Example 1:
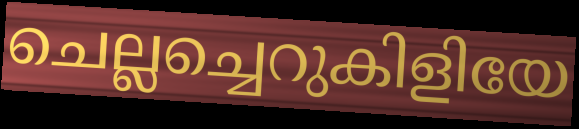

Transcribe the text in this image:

ചെല്ലച്ചെറുകിളിയേ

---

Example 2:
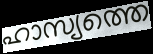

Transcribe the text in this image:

ഹാസ്യത്തെ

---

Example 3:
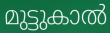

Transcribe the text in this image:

മുട്ടുകാൽ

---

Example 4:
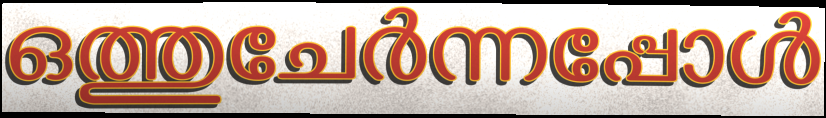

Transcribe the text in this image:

ഒത്തുചേർന്നപ്പോൾ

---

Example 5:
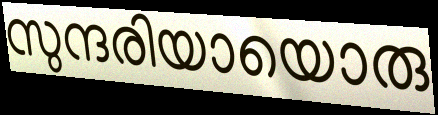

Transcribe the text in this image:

സുന്ദരിയായൊരു